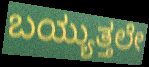
ಬಯ್ಯುತ್ತಲೇ